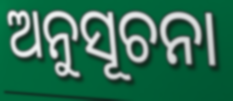
ଅନୁସୂଚନା